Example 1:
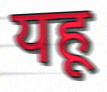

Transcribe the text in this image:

यहू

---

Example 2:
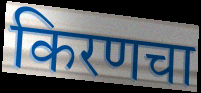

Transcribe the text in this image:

किरणचा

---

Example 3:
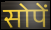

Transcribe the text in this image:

सोपें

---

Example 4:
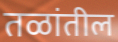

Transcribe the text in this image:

तळांतील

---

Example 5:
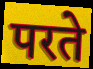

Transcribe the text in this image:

परते